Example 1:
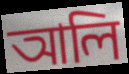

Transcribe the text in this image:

আলি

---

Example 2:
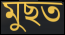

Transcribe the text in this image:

মুছত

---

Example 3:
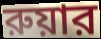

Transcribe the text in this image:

রুয়ার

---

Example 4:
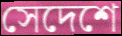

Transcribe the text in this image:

সেদেশে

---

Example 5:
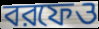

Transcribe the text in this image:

বরফেও